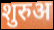
शुरुअ